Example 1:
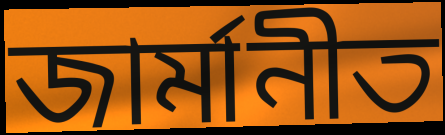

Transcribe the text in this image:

জাৰ্মানীত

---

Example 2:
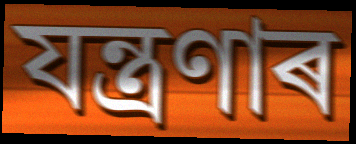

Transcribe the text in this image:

যন্ত্ৰণাৰ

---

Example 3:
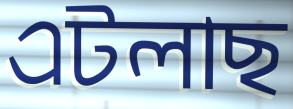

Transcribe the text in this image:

এটলাছ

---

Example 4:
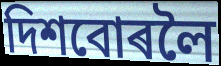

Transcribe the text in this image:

দিশবোৰলৈ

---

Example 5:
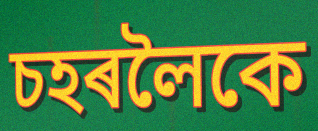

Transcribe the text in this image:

চহৰলৈকে